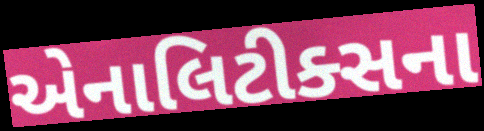
એનાલિટીક્સના